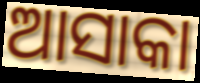
ଆସାକା